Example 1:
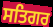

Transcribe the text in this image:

ਸਤਿਗਰ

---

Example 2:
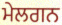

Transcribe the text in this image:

ਮੇਲਗਨ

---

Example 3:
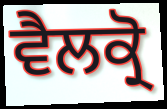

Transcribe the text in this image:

ਵੈਲਕ੍ਰੋ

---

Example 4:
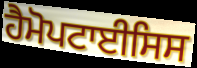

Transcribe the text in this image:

ਹੈਮੋਪਟਾਈਸਿਸ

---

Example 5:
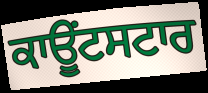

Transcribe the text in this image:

ਕਾਊਂਟਸਟਾਰ